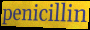
penicillin